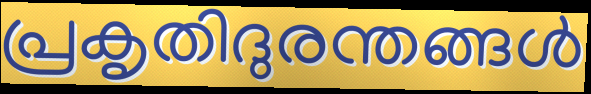
പ്രകൃതിദുരന്തങ്ങൾ